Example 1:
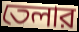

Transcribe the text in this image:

তেলার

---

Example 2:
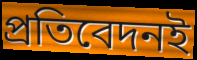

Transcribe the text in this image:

প্রতিবেদনই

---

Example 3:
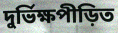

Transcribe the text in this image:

দুর্ভিক্ষপীড়িত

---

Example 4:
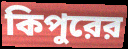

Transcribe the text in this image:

কিপুরের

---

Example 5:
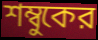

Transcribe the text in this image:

শম্বুকের